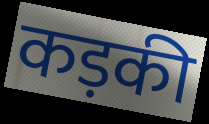
कड़की